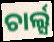
ଚାର୍ଲ୍ସ